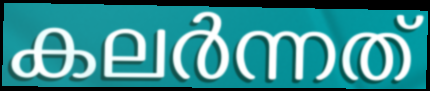
കലർന്നത്